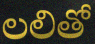
లలితో